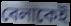
বেলাকেই